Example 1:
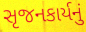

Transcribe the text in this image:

સૃજનકાર્યનું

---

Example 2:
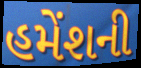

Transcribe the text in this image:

હમેંશની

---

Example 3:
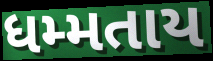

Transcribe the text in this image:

ધમ્મતાય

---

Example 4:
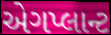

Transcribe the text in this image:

એગપ્લાન્ટ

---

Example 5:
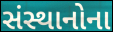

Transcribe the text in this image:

સંસ્થાનોના